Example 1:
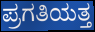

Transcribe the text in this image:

ಪ್ರಗತಿಯತ್ತ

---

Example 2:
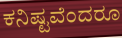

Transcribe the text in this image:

ಕನಿಷ್ಟವೆಂದರೂ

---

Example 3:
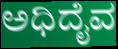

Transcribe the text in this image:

ಅಧಿದೈವ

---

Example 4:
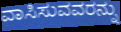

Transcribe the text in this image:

ವಾಸಿಸುವವರನ್ನು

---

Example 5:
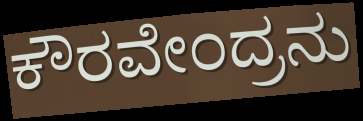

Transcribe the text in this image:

ಕೌರವೇಂದ್ರನು